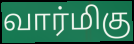
வார்மிகு